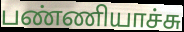
பண்ணியாச்சு